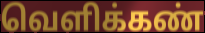
வெளிக்கண்